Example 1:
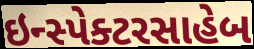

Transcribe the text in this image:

ઇન્સ્પેક્ટરસાહેબ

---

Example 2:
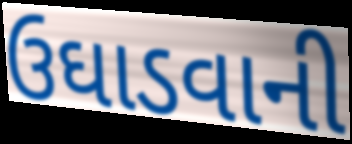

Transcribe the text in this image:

ઉઘાડવાની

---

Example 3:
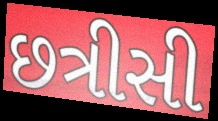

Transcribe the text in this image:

છત્રીસી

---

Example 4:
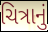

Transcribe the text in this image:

ચિત્રાનું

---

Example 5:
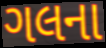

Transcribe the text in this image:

ગલના